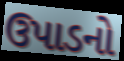
ઉપાડનો